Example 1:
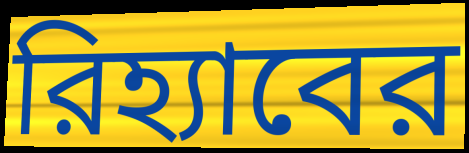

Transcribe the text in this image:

রিহ্যাবের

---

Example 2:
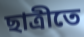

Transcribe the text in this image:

ছাত্রীতে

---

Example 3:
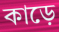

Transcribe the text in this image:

কাড়ে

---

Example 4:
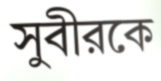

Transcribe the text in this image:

সুবীরকে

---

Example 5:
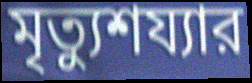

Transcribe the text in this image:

মৃত্যুশয্যার